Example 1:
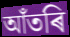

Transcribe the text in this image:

আঁতৰি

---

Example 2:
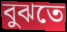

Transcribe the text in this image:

বুঝতে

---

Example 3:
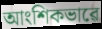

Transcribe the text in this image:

আংশিকভাৱে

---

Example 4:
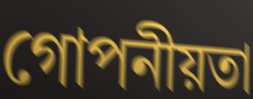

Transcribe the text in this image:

গোপনীয়তা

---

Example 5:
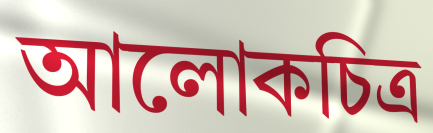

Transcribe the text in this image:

আলোকচিত্ৰ